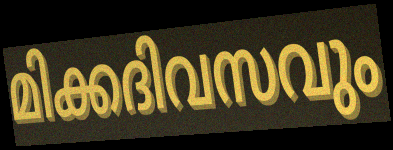
മിക്കദിവസവും